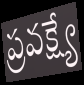
ప్రవక్ష్యే